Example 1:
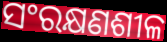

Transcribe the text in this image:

ସଂରକ୍ଷଣଶୀଳ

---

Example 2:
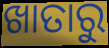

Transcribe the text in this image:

ଖାତାରୁ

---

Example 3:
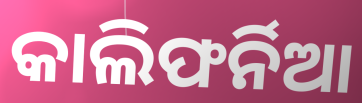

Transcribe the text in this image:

କାଲିଫର୍ନିଆ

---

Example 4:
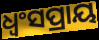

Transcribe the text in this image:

ଧ୍ୱଂସପ୍ରାୟ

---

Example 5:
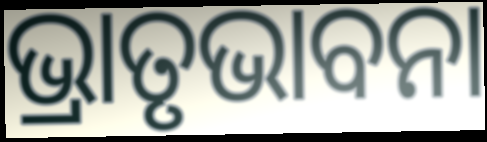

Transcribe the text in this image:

ଭ୍ରାତୃଭାବନା